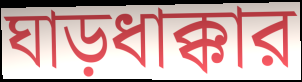
ঘাড়ধাক্কার